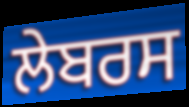
ਲੇਬਰਸ